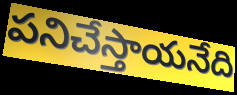
పనిచేస్తాయనేది